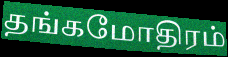
தங்கமோதிரம்